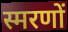
स्मरणों